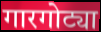
गारगोट्या